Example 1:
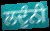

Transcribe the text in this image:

ਲਦੁੰਨੀ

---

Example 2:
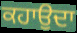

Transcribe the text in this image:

ਕਹਾਉਦਾ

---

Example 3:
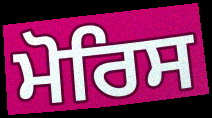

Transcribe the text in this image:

ਮੋਰਿਸ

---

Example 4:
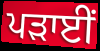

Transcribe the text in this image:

ਪੜਾਈਂ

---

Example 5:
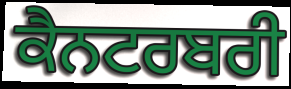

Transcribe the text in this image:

ਕੈਨਟਰਬਰੀ